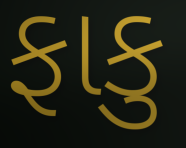
ફાકુ